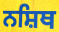
ਨਸ਼ਿਥ